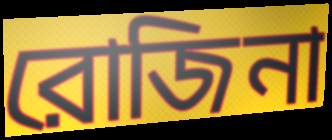
রোজিনা